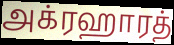
அக்ரஹாரத்